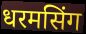
धरमसिंग